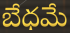
బేధమే